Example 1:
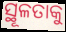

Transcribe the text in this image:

ସ୍ଥୂଳତାକୁ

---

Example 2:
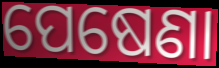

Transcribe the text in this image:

ପେଷେଣା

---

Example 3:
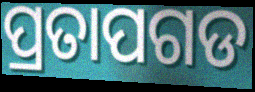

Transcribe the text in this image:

ପ୍ରତାପଗଡ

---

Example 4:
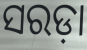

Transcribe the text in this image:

ସରଡ଼ା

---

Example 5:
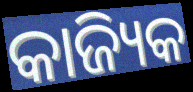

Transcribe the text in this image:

କାଜ୍ୟିକ